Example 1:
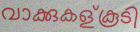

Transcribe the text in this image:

വാക്കുകള്കൂടി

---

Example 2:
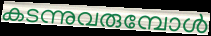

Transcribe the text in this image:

കടന്നുവരുമ്പോൾ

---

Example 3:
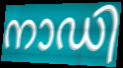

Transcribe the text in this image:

നാഡി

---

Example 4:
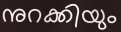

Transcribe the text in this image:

നുറക്കിയും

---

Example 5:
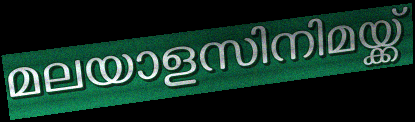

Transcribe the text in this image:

മലയാളസിനിമയ്ക്ക്